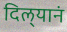
दिल्यानं